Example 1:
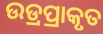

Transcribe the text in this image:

ଉଡ୍ରପ୍ରାକୃତ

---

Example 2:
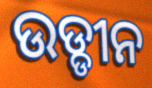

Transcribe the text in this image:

ଉଡ୍ଡୀନ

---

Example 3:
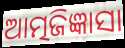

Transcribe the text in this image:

ଆତ୍ମଜିଜ୍ଞାସା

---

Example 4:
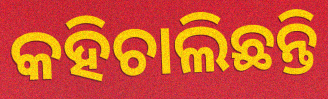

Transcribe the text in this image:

କହିଚାଲିଛନ୍ତି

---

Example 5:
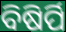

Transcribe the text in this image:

ବିଷିର୍ପି